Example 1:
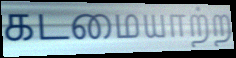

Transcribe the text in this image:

கடமையாற்ற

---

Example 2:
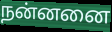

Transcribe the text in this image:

நன்னனை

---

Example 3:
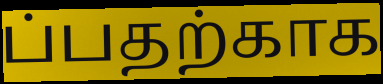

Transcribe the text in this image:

ப்பதற்காக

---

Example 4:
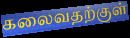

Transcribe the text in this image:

கலைவதற்குள்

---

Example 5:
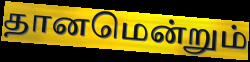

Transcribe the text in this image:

தானமென்றும்